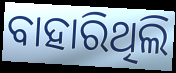
ବାହାରିଥିଲି